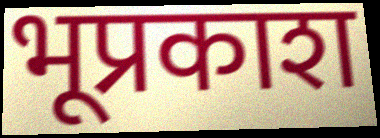
भूप्रकाश